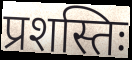
प्रशस्तिः